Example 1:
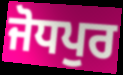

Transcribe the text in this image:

ਜੋਧਪੁਰ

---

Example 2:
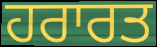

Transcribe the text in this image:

ਹਰਾਰਤ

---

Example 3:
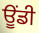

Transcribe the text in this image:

ਊਂਡੀ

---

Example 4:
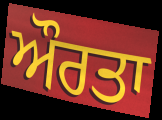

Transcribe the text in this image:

ਔਰਤਾ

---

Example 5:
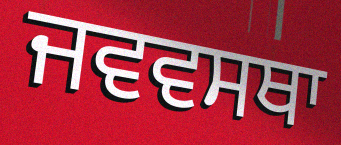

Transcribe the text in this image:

ਜਵਵਸਥਾ